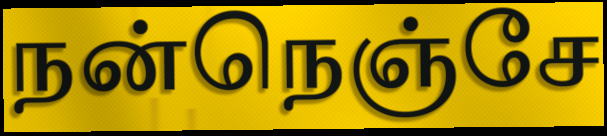
நன்நெஞ்சே